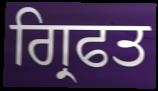
ਗ੍ਰਿਫਤ